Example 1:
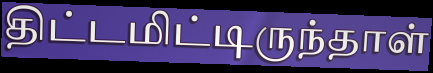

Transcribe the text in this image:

திட்டமிட்டிருந்தாள்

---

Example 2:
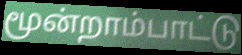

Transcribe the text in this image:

மூன்றாம்பாட்டு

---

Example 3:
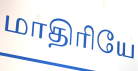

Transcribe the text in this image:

மாதிரியே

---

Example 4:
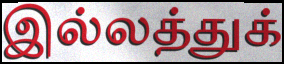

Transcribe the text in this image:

இல்லத்துக்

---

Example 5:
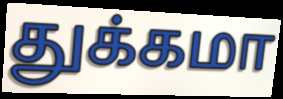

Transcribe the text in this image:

துக்கமா